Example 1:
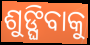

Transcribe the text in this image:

ଶୁଙ୍ଘିବାକୁ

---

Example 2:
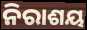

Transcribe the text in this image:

ନିରାଶୟ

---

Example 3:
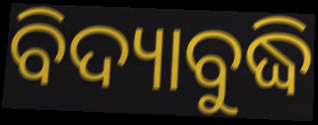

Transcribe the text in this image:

ବିଦ୍ୟାବୁଦ୍ଧି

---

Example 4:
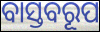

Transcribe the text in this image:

ବାସ୍ତବରୂପ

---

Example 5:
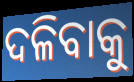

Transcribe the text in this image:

ଦଳିବାକୁ